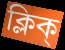
ক্লিক্